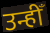
उन्हीँ